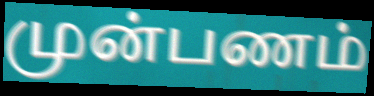
முன்பணம்